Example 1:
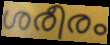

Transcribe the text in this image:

ശരീരം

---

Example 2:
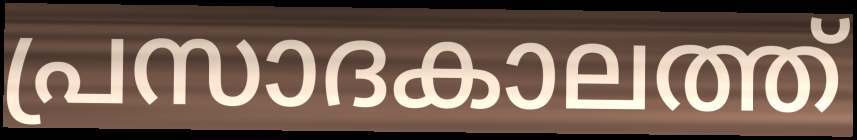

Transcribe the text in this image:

പ്രസാദകാലത്ത്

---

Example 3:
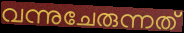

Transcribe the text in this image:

വന്നുചേരുന്നത്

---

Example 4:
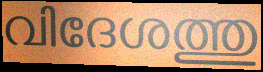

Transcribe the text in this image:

വിദേശത്തു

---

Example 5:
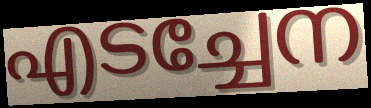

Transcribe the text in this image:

എടച്ചേന